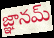
జ్ఞానమ్